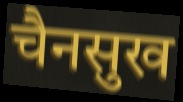
चैनसुख